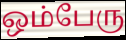
ஒம்பேரு